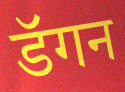
डॅगन